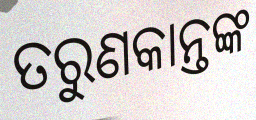
ତରୁଣକାନ୍ତଙ୍କ